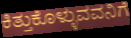
ಕಿತ್ತುಕೊಳ್ಳುವವನಿಗೆ